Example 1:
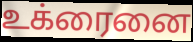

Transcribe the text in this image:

உக்ரைனை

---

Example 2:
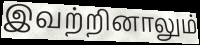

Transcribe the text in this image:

இவற்றினாலும்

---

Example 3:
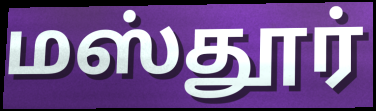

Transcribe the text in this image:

மஸ்தூர்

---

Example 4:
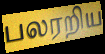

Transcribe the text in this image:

பலரறிய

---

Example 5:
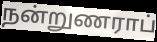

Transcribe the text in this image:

நன்றுணராப்